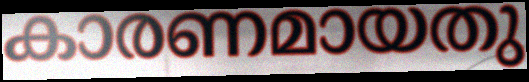
കാരണമായതു